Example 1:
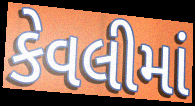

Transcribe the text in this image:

કેવલીમાં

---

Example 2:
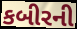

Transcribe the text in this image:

કબીરની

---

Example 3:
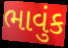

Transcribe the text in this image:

ભાવુંક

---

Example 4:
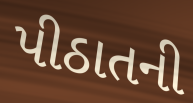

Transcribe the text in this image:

પીઠાતની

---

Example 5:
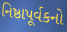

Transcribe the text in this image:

નિષ્ઠાપૂર્વકનો